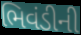
ભિવંડીની